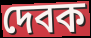
দেবক